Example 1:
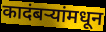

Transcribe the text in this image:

कादंबर्‍यांमधून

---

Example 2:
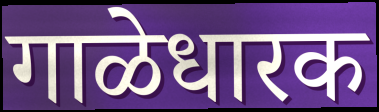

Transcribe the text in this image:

गाळेधारक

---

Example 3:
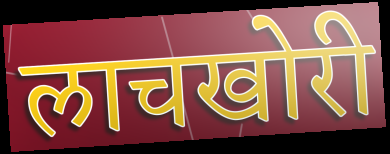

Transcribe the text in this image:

लाचखोरी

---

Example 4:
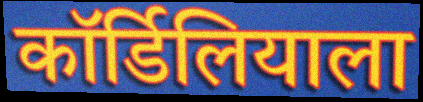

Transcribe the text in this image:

कॉर्डिलियाला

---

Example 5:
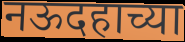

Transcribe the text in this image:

नऊदहाच्या